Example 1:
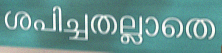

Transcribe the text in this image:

ശപിച്ചതല്ലാതെ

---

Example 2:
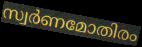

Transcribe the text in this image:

സ്വർണമോതിരം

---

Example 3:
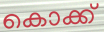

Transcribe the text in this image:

കൊക്ക്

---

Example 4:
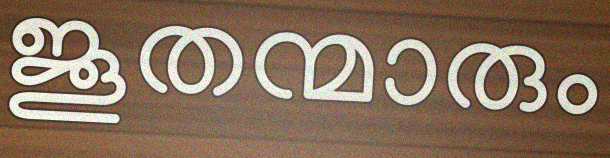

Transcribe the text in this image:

ജൂതന്മാരും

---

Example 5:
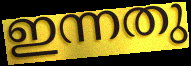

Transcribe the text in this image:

ഇന്നതു